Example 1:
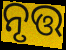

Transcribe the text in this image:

ନୃତ୍ତ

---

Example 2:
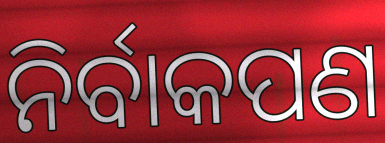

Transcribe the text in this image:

ନିର୍ବାକପଣ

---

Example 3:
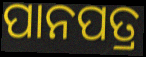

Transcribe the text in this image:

ପାନପତ୍ର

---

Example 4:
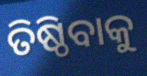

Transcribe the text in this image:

ତିଷ୍ଠିବାକୁ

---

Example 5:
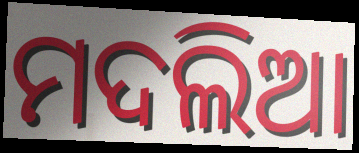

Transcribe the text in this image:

ମଦଲିଆ